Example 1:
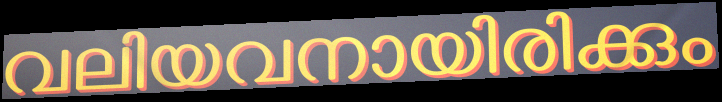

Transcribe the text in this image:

വലിയവനായിരിക്കും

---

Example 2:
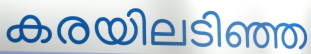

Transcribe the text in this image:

കരയിലടിഞ്ഞ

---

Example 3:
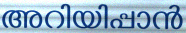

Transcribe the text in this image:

അറിയിപ്പാൻ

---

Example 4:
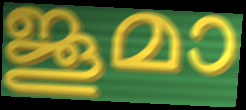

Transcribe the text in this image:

ജൂമാ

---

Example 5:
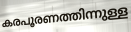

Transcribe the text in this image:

കരപൂരണത്തിന്നുള്ള